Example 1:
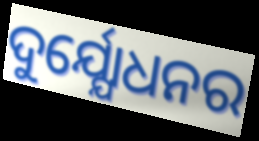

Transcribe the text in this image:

ଦୁର୍ଯ୍ଯୋଧନର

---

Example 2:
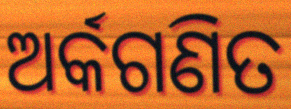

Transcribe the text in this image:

ଅର୍କଗଣିତ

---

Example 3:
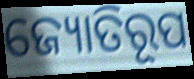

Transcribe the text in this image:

ଜ୍ୟୋତିରୂପ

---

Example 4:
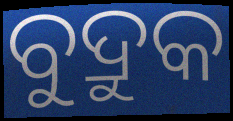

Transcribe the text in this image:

ବୁଦ୍ରୁକ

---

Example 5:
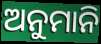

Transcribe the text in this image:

ଅନୁମାନି